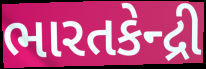
ભારતકેન્દ્રી